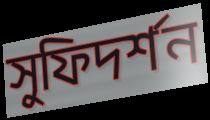
সুফিদর্শন